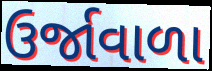
ઉર્જાવાળા